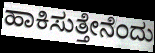
ಹಾಕಿಸುತ್ತೇನೆಂದು